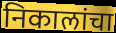
निकालांचा